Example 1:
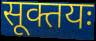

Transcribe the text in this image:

सूक्तयः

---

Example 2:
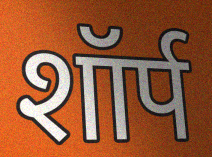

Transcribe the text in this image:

शॉर्प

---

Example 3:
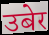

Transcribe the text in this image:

उबेर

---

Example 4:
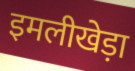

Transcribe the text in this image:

इमलीखेड़ा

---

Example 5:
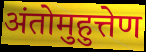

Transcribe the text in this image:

अंतोमुहुत्तेण